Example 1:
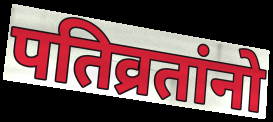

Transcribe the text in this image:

पतिव्रतांनो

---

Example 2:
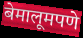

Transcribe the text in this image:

बेमालूमपणे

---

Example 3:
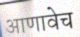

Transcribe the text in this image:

आणावेच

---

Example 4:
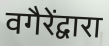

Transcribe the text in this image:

वगैरेंद्वारा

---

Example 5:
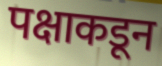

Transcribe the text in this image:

पक्षाकडून